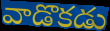
వాడొకడు